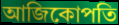
আজিকোপতি